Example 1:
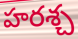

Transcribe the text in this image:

హరశ్చ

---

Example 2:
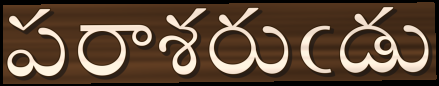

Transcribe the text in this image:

పరాశరుఁడు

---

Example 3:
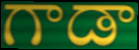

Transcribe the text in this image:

గాడా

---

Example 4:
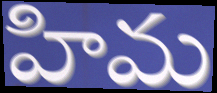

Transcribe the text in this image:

హిమ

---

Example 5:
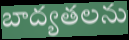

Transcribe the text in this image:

బాద్యతలను